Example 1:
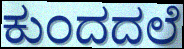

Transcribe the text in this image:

ಕುಂದದಲೆ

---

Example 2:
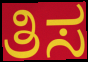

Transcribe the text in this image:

ತಿಸ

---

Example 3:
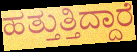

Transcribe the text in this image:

ಹತ್ತುತ್ತಿದ್ದಾರೆ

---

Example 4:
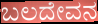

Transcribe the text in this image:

ಬಲದೇವನ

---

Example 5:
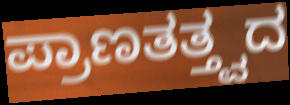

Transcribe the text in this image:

ಪ್ರಾಣತತ್ತ್ವದ